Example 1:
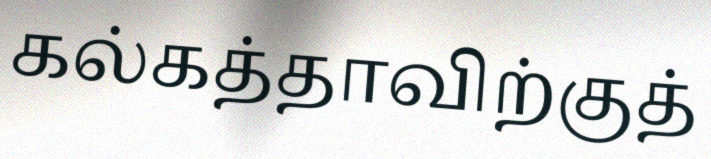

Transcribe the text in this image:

கல்கத்தாவிற்குத்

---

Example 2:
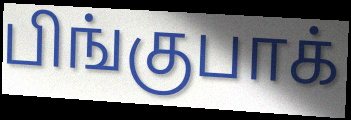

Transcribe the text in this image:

பிங்குபாக்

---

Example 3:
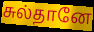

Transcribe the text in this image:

சுல்தானே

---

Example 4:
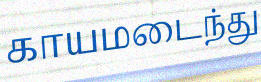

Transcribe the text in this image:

காயமடைந்து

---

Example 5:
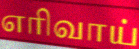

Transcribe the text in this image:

எரிவாய்